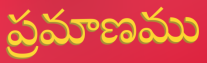
ప్రమాణము